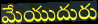
మేయుదురు